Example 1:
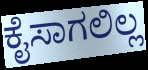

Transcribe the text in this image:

ಕೈಸಾಗಲಿಲ್ಲ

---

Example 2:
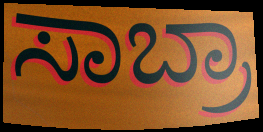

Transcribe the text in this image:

ಸಾಬ್ರಾ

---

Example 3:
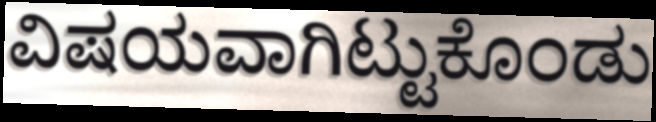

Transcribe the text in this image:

ವಿಷಯವಾಗಿಟ್ಟುಕೊಂಡು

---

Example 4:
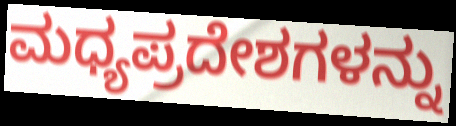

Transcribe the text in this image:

ಮಧ್ಯಪ್ರದೇಶಗಳನ್ನು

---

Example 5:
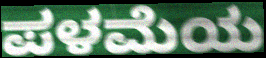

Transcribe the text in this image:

ಪಳಮೆಯ